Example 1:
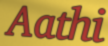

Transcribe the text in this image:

Aathi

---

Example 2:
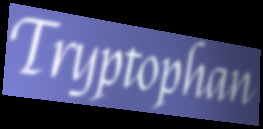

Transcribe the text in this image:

Tryptophan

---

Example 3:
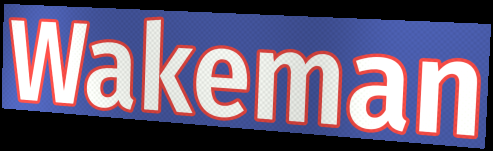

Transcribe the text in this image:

Wakeman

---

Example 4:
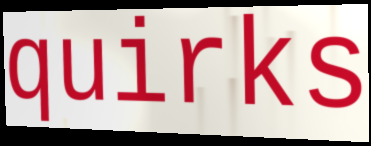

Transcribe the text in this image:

quirks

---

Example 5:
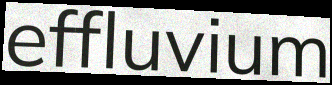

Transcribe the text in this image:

effluvium